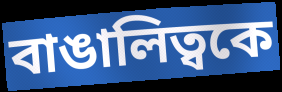
বাঙালিত্বকে